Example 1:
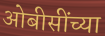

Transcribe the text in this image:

ओबीसींच्या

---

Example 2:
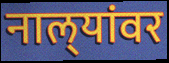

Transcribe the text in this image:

नाल्यांवर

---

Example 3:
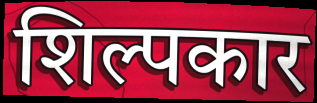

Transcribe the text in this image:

शिल्पकार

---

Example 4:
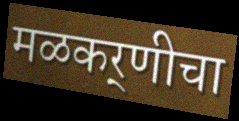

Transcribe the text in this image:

मळकर्णीचा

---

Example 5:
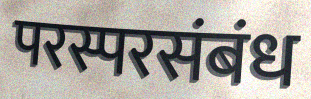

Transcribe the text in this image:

परस्परसंबंध